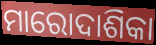
ମାରୋଦାଶିକା